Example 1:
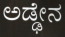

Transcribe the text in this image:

ಅಡ್ಢೇನ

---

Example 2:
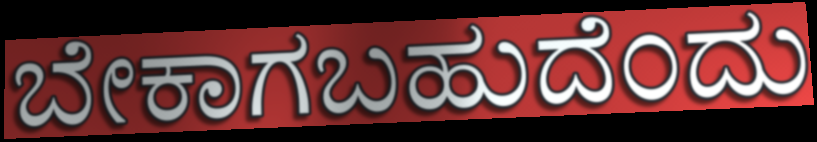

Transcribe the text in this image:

ಬೇಕಾಗಬಹುದೆಂದು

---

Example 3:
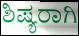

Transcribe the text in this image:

ಶಿಷ್ಯರಾಗಿ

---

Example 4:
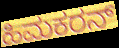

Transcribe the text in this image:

ಹಿಮಕರನ್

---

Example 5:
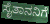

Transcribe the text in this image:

ಸೈತಾನನಿಗೆ